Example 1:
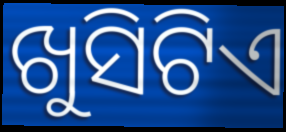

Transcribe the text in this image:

ଖୁସିଟିଏ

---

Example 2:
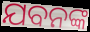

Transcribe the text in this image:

ଯବନଙ୍କ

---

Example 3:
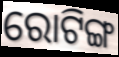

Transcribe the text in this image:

ରୋଟିଙ୍ଗ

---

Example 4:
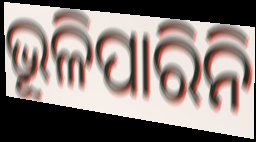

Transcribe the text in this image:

ଭୂଳିପାରିନି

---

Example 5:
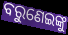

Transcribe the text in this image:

ବରୁଣେଇଙ୍କୁ